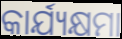
କାର୍ଯ୍ୟକ୍ଷମା